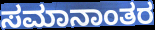
ಸಮಾನಾಂತರ